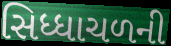
સિધ્ધાચળની